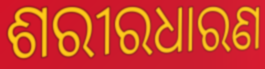
ଶରୀରଧାରଣ